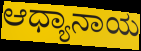
ಆಧ್ಯಾನಾಯ